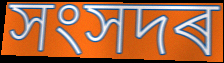
সংসদৰ